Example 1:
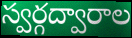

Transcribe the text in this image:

స్వర్గద్వారాల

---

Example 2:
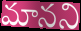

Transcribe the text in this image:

మానని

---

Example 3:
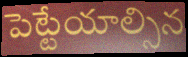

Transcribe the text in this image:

పెట్టేయాల్సిన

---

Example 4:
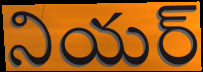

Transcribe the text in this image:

నియర్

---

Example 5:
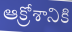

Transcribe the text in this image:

ఆక్రోశానికి